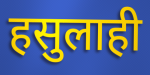
हसुलाही